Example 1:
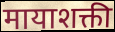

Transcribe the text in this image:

मायाशक्ती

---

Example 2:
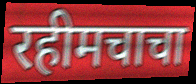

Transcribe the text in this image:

रहीमचाचा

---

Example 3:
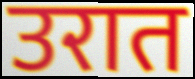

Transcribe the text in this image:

उरात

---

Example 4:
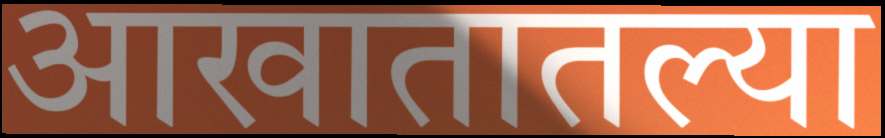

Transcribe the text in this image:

आखातातल्या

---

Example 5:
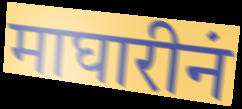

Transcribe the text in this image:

माघारीनं